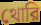
থোরি